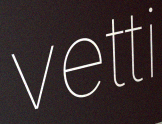
vetti